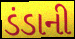
ડંડાની